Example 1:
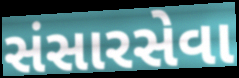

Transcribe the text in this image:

સંસારસેવા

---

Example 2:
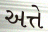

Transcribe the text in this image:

અત્તે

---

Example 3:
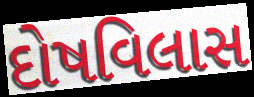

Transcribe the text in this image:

દોષવિલાસ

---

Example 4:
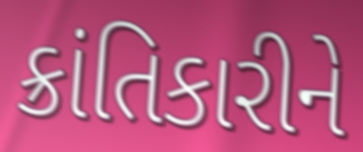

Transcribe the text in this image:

ક્રાંતિકારીને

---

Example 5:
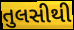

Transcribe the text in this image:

તુલસીથી